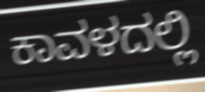
ಕಾವಳದಲ್ಲಿ